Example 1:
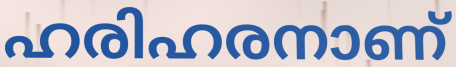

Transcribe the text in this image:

ഹരിഹരനാണ്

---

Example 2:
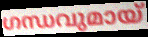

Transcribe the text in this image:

ഗന്ധവുമായ്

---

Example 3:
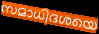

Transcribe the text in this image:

സമാധിദശയെ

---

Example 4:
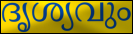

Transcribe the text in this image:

ദൃശ്യവും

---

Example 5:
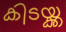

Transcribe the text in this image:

കിടയ്ക്ക